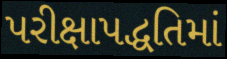
પરીક્ષાપદ્ધતિમાં